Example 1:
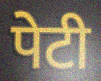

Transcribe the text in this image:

पेटी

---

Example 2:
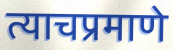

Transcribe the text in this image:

त्याचप्रमाणे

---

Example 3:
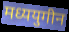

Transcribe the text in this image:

मध्ययुगीन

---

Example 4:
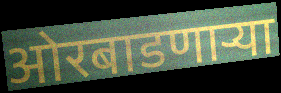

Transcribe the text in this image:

ओरबाडणाऱ्या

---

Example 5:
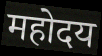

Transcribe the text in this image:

महोदय